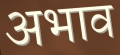
अभाव